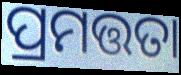
ପ୍ରମତ୍ତତା